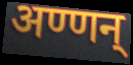
अण्णन्